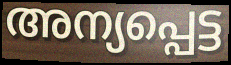
അന്യപ്പെട്ട